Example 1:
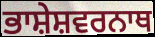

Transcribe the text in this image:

ਭਾਸ਼ੇਸ਼ਵਰਨਾਥ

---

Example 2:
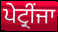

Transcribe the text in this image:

ਪੇਟ੍ਰੀਂਜਾ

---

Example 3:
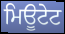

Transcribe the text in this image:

ਮਿਊਟੇਟ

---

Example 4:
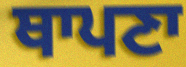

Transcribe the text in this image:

ਥਾਪਣਾ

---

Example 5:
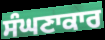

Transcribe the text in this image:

ਸੰਘਣਾਕਾਰ